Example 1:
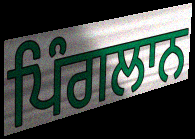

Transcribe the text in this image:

ਪਿੰਗਲਾਨ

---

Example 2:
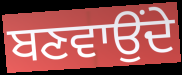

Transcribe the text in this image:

ਬਣਵਾਉਂਦੇ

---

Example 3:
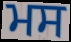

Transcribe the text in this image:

ਮਸ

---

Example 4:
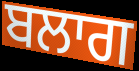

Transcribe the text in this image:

ਬਲਾਗ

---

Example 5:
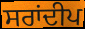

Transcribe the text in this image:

ਸਰਾਂਦੀਪ